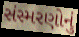
સંસ્મરણોનું